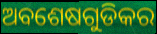
ଅବଶେଷଗୁଡିକର